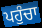
ਪਹੁੰਚਾ